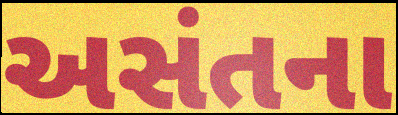
અસંતના